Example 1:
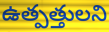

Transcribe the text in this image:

ఉత్పత్తులని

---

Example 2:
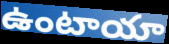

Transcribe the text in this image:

ఉంటాయా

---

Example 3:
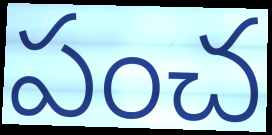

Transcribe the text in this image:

పంచ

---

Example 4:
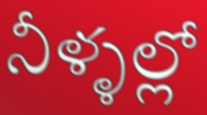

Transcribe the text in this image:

నీళ్ళల్లో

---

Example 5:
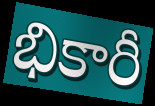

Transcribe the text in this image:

భికారీ